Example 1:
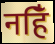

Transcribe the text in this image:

नहिँ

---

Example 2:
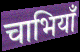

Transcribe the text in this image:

चाभियाँ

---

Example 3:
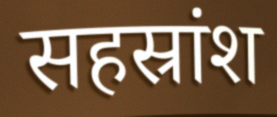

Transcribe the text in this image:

सहस्रांश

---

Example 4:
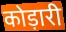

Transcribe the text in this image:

कोड़ारी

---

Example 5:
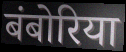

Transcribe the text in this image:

बंबोरिया